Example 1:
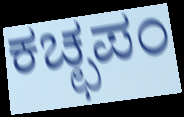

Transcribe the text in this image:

ಕಚ್ಛಪಂ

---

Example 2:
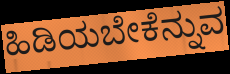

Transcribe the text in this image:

ಹಿಡಿಯಬೇಕೆನ್ನುವ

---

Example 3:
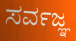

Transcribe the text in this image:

ಸರ್ವಜ್ಞ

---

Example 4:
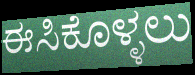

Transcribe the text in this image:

ಈಸಿಕೊಳ್ಳಲು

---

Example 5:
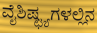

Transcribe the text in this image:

ವೈಶಿಷ್ಟ್ಯಗಳಲ್ಲಿನ